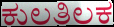
ಕುಲತಿಲಕ